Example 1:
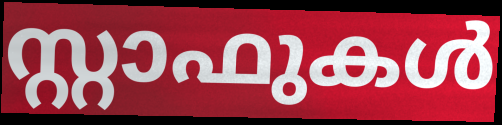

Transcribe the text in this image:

സ്റ്റാഫുകൾ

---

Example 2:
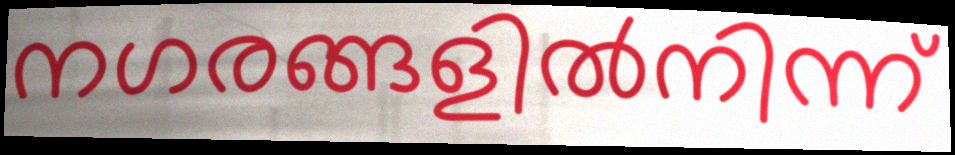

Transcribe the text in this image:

നഗരങ്ങളിൽനിന്ന്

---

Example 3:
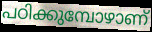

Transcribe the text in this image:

പഠിക്കുമ്പോഴാണ്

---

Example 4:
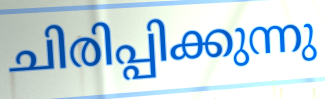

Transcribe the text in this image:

ചിരിപ്പിക്കുന്നു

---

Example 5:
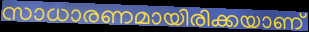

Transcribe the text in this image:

സാധാരണമായിരിക്കയാണ്